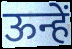
ऊन्हें